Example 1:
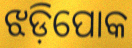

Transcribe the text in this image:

ଝଡ଼ିପୋକ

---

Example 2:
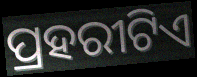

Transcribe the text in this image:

ପ୍ରହରୀଟିଏ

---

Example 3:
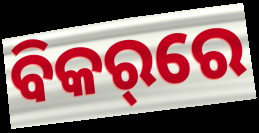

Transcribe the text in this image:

ବିକର୍‌ରେ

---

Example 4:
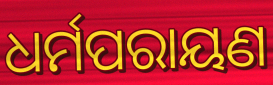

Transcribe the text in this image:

ଧର୍ମପରାୟଣ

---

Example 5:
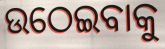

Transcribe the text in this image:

ଉଠେଇବାକୁ